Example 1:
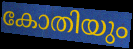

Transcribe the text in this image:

കോതിയും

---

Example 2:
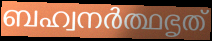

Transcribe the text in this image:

ബഹ്വനർത്ഥഭൃത്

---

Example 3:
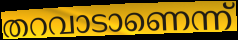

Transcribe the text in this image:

തറവാടാണെന്ന്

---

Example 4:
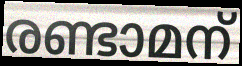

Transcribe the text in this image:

രണ്ടാമന്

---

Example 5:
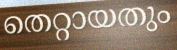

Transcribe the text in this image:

തെറ്റായതും